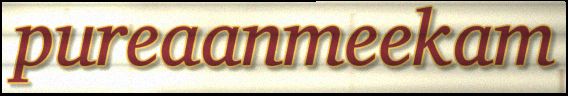
pureaanmeekam